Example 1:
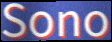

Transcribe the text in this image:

Sono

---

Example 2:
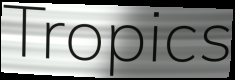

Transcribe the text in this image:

Tropics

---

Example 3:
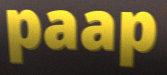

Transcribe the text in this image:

paap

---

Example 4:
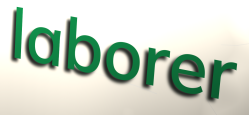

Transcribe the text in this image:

laborer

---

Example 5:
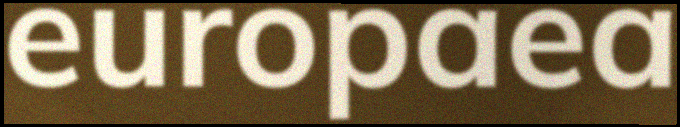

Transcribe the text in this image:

europaea